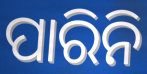
ପାରିନି